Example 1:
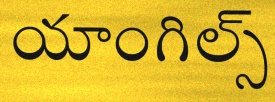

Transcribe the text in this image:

యాంగిల్స్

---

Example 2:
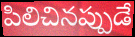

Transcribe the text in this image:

పిలిచినప్పుడే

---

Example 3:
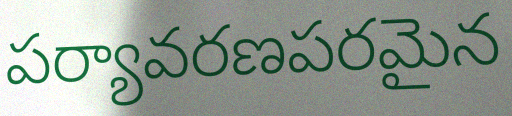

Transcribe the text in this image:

పర్యావరణపరమైన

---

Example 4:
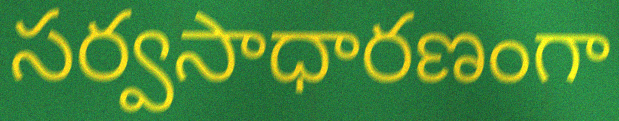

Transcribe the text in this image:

సర్వసాధారణంగా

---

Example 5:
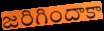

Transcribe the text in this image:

జరిగిందాకా